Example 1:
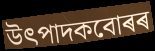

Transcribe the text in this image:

উৎপাদকবোৰৰ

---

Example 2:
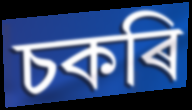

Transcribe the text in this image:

চকৰি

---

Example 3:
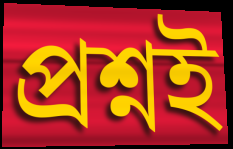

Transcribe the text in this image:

প্ৰশ্নই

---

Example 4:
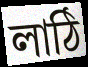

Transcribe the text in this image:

লাঠি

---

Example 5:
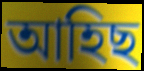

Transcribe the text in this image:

আহিছ